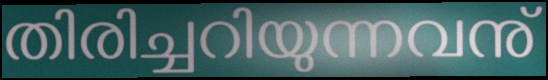
തിരിച്ചറിയുന്നവനു്